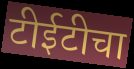
टीईटीचा